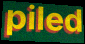
piled